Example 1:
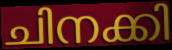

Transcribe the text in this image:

ചിനക്കി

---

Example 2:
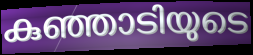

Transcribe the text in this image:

കുഞ്ഞാടിയുടെ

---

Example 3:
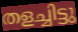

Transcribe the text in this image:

തളച്ചിട്ടു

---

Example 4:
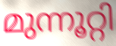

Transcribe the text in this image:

മുന്നൂറ്റി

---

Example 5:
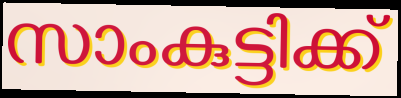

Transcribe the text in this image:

സാംകുട്ടിക്ക്